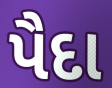
પૈદા